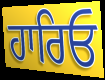
ਹਾਰਿਓ